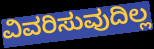
ವಿವರಿಸುವುದಿಲ್ಲ